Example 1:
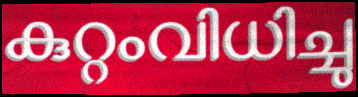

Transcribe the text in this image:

കുറ്റംവിധിച്ചു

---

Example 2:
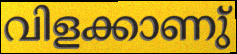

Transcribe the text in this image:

വിളക്കാണു്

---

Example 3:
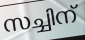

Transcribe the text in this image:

സച്ചിന്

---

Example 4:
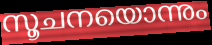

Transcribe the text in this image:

സൂചനയൊന്നും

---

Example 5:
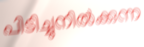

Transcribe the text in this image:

പിടിച്ചുനിൽക്കുന്ന